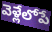
వెళ్లేలోపే